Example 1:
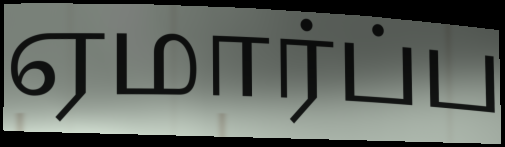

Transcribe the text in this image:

ஏமார்ப்ப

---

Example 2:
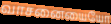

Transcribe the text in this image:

வாசனையையோ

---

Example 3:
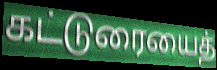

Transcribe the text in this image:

கட்டுரையைத்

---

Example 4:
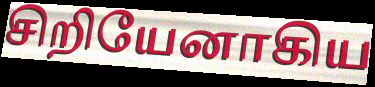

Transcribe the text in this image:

சிறியேனாகிய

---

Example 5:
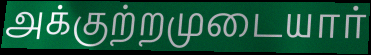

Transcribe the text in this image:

அக்குற்றமுடையார்